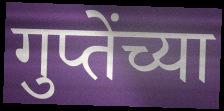
गुप्तेंच्या